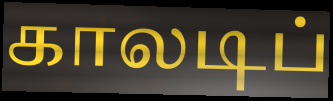
காலடிப்